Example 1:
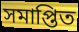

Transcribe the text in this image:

সমাপ্তিত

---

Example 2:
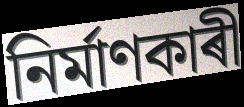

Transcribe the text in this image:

নিৰ্মাণকাৰী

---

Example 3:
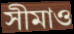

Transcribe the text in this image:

সীমাও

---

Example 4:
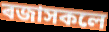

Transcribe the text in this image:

ৰজাসকলে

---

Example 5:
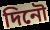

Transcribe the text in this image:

দিনৌ